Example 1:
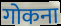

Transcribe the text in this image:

गोकना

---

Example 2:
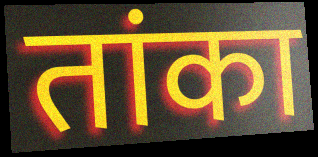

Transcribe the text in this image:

तांका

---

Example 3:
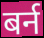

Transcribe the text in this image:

बर्न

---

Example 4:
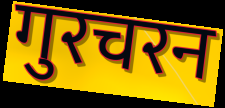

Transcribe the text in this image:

गुरचरन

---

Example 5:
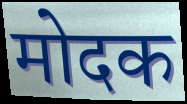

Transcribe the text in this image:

मोदक